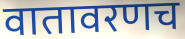
वातावरणच